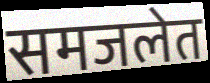
समजलेत